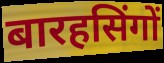
बारहसिंगों